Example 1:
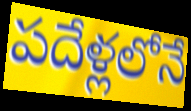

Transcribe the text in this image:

పదేళ్లలోనే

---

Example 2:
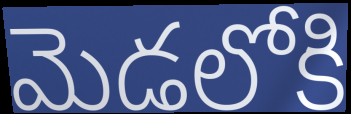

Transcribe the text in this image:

మెడలోకి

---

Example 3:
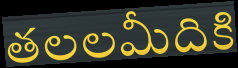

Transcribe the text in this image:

తలలమీదికి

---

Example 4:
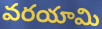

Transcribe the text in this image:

వరయామి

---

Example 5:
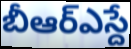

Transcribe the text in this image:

బీఆర్ఎస్దే